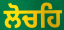
ਲੋਚਹਿ